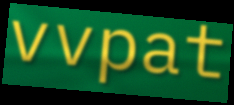
vvpat